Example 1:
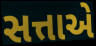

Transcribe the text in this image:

સત્તાએ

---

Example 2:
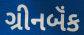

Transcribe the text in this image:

ગ્રીનબૅંક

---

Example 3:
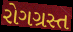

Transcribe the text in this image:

રોગગ્રસ્ત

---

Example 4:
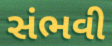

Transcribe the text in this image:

સંભવી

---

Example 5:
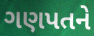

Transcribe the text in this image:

ગણપતને